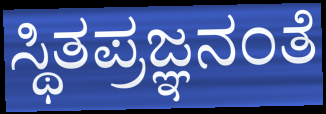
ಸ್ಥಿತಪ್ರಜ್ಞನಂತೆ